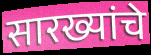
सारख्यांचे